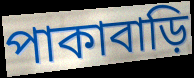
পাকাবাড়ি